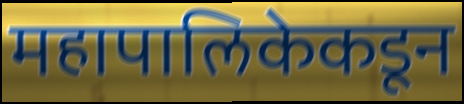
महापालिकेकडून